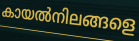
കായൽനിലങ്ങളെ